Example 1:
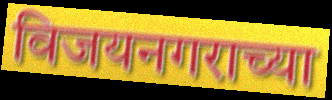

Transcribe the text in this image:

विजयनगराच्या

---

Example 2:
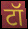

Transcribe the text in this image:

टॉ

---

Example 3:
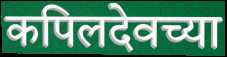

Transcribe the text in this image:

कपिलदेवच्या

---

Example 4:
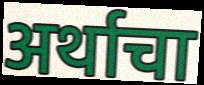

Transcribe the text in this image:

अर्थाचा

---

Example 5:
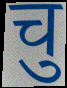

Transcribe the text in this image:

चु